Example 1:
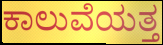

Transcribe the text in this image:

ಕಾಲುವೆಯತ್ತ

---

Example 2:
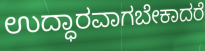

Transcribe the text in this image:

ಉದ್ಧಾರವಾಗಬೇಕಾದರೆ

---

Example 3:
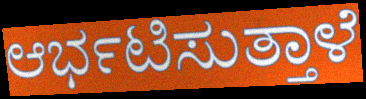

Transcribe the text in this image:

ಆರ್ಭಟಿಸುತ್ತಾಳೆ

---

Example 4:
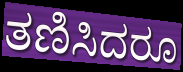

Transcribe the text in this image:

ತಣಿಸಿದರೂ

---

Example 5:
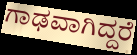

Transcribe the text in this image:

ಗಾಢವಾಗಿದ್ದರೆ